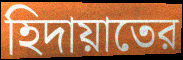
হিদায়াতের